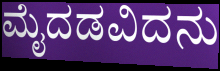
ಮೈದಡವಿದನು